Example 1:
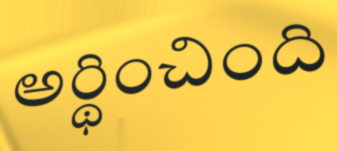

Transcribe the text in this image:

అర్థించింది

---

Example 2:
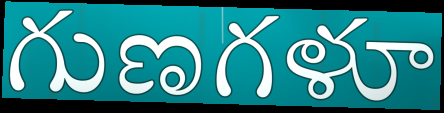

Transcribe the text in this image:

గుణగళూ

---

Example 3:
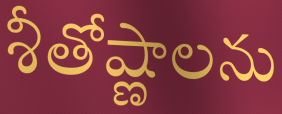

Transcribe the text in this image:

శీతోష్ణాలను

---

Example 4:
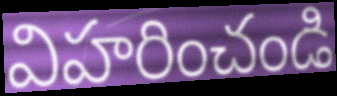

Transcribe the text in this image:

విహరించండి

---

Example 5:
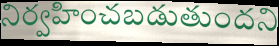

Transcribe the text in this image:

నిర్వహించబడుతుందని